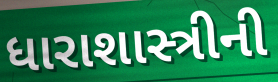
ધારાશાસ્ત્રીની